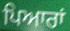
ਪਿਆਰਾਂ